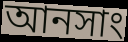
আনসাং